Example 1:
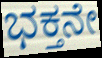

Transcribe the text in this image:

ಭಕ್ತನೇ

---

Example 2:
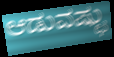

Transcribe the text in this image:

ಆಡುವಷ್ಟು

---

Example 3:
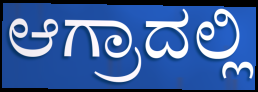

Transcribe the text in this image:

ಆಗ್ರಾದಲ್ಲಿ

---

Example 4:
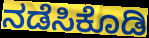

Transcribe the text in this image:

ನಡೆಸಿಕೊಡಿ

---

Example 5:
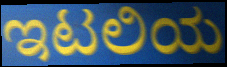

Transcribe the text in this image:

ಇಟಲಿಯ